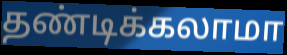
தண்டிக்கலாமா